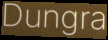
Dungra